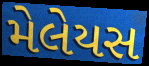
મેલેયસ